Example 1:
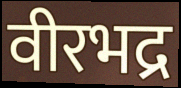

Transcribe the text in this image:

वीरभद्र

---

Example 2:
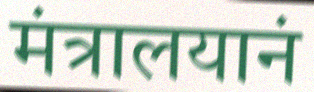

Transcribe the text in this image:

मंत्रालयानं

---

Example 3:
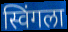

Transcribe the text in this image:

स्विंगला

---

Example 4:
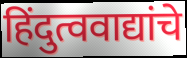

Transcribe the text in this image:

हिंदुत्ववाद्यांचे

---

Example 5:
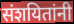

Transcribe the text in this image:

संशयितांनी